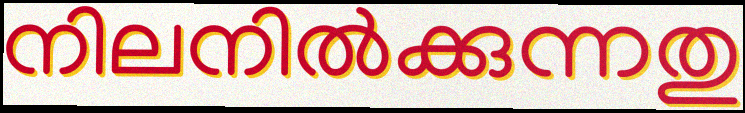
നിലനിൽക്കുന്നതു